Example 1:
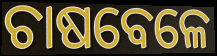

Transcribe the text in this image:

ଚାଷବେଳେ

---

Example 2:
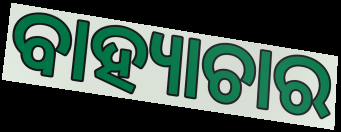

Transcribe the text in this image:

ବାହ୍ୟାଚାର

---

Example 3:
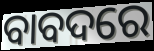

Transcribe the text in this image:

ବାବଦରେ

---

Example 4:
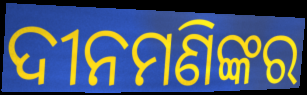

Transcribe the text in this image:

ଦୀନମଣିଙ୍କର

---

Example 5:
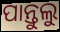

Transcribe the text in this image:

ପାନ୍ତୁଲୁ